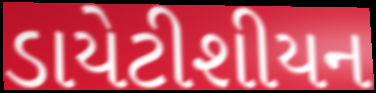
ડાયેટીશીયન